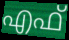
എഫ്